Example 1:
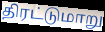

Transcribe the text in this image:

திரட்டுமாறு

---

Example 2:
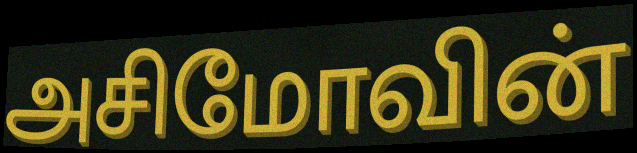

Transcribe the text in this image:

அசிமோவின்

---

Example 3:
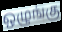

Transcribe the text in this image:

ஒழுங்கு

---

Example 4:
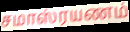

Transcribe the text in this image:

சமாஸ்ரயணம்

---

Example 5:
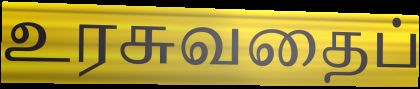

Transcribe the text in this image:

உரசுவதைப்